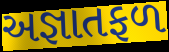
અજ્ઞાતફળ